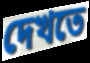
দেখতে